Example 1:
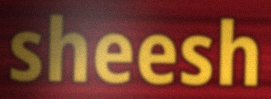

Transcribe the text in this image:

sheesh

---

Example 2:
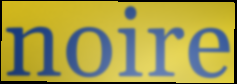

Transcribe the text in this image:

noire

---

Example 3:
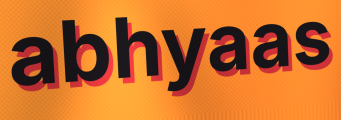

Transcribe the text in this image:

abhyaas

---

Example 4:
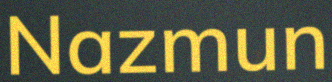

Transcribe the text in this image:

Nazmun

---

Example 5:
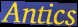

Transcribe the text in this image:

Antics